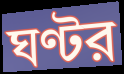
ঘণ্টর